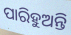
ପାରିହୁଅନ୍ତି